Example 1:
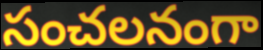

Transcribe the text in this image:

సంచలనంగా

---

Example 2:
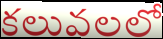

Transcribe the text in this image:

కలువలలో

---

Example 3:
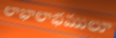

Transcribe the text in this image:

లాభాలాభములూ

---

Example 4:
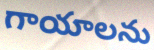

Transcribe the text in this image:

గాయాలను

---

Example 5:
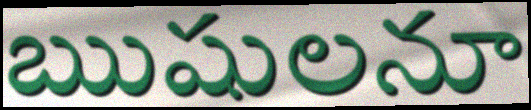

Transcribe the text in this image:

ఋషులనూ